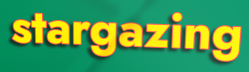
stargazing